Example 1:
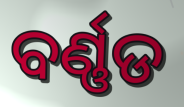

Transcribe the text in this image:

ବର୍ଣ୍ଣଡ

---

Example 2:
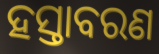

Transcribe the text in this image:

ହସ୍ତାବରଣ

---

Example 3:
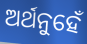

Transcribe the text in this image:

ଅର୍ଥନୁହେଁ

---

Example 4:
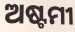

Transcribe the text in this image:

ଅଷ୍ଟମୀ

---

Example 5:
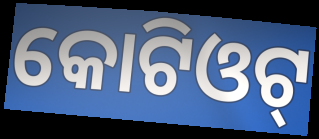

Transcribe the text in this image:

କୋଟିଓଟ୍